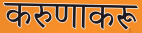
करुणाकरू